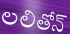
లలితోన్